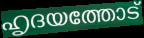
ഹൃദയത്തോട്